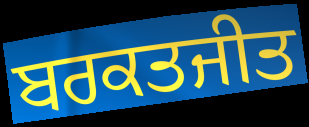
ਬਰਕਤਜੀਤ